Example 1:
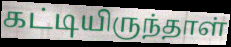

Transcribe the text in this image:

கட்டியிருந்தாள்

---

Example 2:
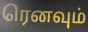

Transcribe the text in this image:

ரெனவும்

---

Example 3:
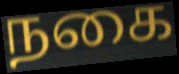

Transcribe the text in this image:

நகை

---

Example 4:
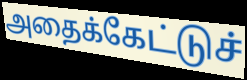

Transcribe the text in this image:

அதைக்கேட்டுச்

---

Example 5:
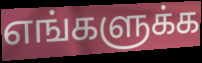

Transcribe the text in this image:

எங்களுக்க